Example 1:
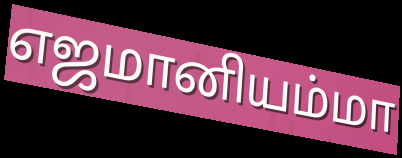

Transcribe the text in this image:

எஜமானியம்மா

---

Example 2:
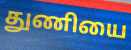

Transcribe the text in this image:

துணியை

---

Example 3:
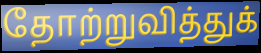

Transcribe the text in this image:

தோற்றுவித்துக்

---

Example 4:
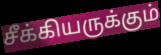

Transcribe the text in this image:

சீக்கியருக்கும்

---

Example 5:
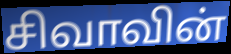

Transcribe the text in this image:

சிவாவின்